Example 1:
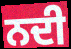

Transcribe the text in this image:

ਨਦੀ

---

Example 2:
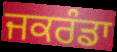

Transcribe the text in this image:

ਜਕਰੰਡਾ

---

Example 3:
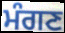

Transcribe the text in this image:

ਮੰਗਣ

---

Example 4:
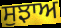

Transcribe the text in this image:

ਸੁਝਾਅ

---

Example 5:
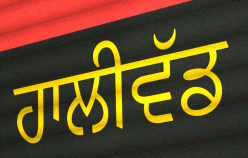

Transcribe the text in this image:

ਹਾਲੀਵੱਡ